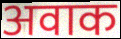
अवाक